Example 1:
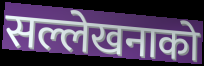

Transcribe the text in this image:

सल्लेखनाको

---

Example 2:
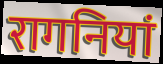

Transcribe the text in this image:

रागनियां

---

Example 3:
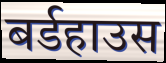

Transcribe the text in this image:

बर्डहाउस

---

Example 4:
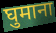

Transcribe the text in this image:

घुमाना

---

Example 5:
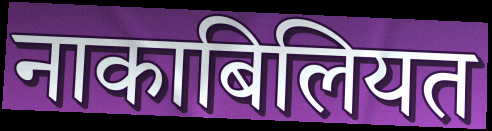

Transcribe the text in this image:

नाकाबिलियत